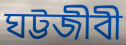
ঘট্টজীবী